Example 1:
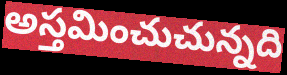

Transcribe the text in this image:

అస్తమించుచున్నది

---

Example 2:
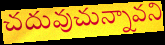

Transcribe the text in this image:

చదువుచున్నావని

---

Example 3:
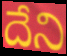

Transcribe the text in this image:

దేని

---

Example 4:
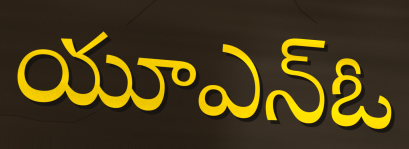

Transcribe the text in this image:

యూఎన్ఓ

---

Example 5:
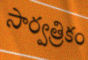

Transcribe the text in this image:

సార్వత్రికం